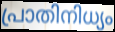
പ്രാതിനിധ്യം